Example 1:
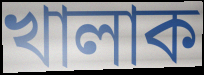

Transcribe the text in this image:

খালাক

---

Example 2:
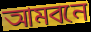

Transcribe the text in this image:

আমবনে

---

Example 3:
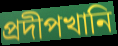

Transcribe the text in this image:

প্রদীপখানি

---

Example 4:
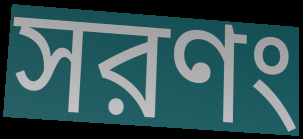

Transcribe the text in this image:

সরণং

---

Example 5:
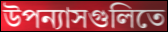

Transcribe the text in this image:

উপন্যাসগুলিতে